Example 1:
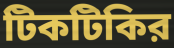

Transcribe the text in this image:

টিকটিকির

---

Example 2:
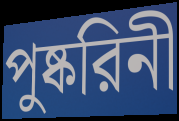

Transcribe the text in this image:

পুষ্করিনী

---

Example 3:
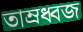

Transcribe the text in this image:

তাম্রধ্বজ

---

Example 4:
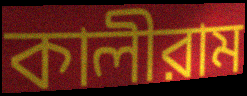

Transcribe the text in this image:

কালীরাম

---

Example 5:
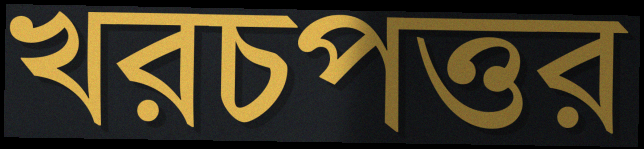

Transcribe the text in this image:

খরচপত্তর